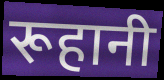
रूहानी